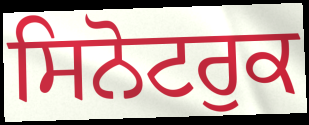
ਸਿਨੋਟਰੁਕ